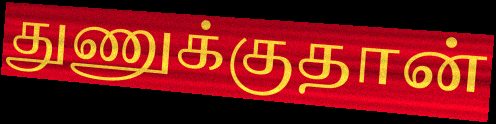
துணுக்குதான்